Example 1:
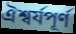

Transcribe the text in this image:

ঐশ্বর্যপূর্ণ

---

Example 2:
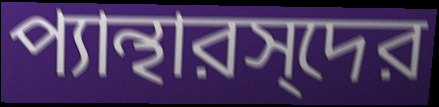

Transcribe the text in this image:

প্যান্থারস্‌দের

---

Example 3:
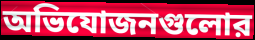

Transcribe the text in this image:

অভিযোজনগুলোর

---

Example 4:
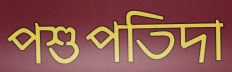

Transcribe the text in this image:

পশুপতিদা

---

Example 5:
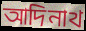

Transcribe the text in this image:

আদিনাথ